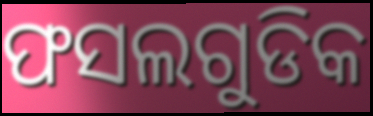
ଫସଲଗୁଡିକ